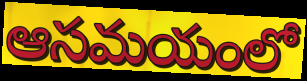
ఆసమయంలో